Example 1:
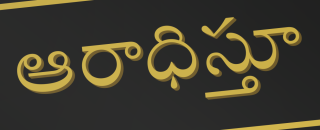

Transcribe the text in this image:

ఆరాధిస్తూ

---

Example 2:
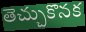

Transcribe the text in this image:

తెచ్చుకొనక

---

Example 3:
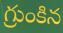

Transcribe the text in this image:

గ్రుంకిన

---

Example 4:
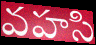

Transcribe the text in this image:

వహసి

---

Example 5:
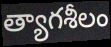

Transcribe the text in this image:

త్యాగశీలం